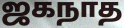
ஜகநாத